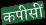
कपीसीं